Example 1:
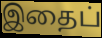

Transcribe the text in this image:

இதைப்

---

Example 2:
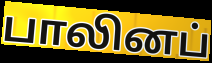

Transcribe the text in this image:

பாலினப்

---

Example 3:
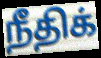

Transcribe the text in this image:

நீதிக்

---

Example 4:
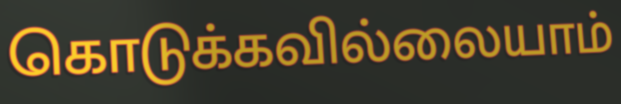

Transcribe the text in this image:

கொடுக்கவில்லையாம்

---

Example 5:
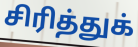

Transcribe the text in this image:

சிரித்துக்